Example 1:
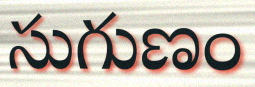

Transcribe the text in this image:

సుగుణం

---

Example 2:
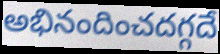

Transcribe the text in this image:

అభినందించదగ్గదే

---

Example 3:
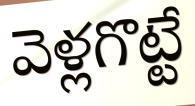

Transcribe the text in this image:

వెళ్లగొట్టే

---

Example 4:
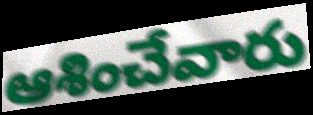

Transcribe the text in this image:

ఆశించేవారు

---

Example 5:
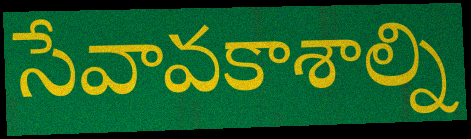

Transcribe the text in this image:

సేవావకాశాల్ని